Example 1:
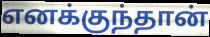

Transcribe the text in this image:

எனக்குந்தான்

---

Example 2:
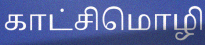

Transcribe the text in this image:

காட்சிமொழி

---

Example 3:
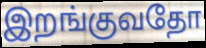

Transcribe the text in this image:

இறங்குவதோ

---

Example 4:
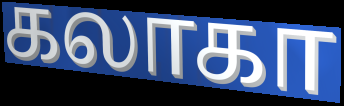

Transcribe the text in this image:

கலாகா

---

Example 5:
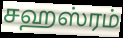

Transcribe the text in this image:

சஹஸ்ரம்